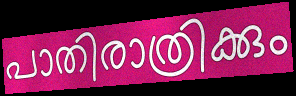
പാതിരാത്രിക്കും